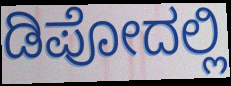
ಡಿಪೋದಲ್ಲಿ